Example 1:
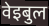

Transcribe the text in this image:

वेइबुल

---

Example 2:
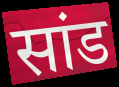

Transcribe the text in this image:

सांड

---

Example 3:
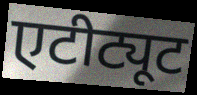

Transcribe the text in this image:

एटीट्यूट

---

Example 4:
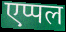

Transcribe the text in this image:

एप्पल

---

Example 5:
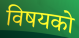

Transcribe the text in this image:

विषयको